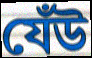
যেঁউ